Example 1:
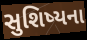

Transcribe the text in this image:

સુશિષ્યના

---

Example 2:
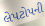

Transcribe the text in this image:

લેપટોપની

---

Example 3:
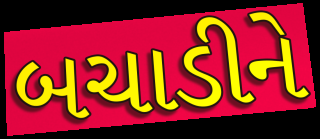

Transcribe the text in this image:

બચાડીને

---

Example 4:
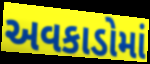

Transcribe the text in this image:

અવકાડોમાં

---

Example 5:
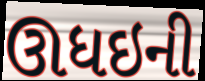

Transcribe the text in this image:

ઊધઇની